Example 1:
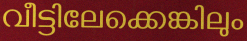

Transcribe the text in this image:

വീട്ടിലേക്കെങ്കിലും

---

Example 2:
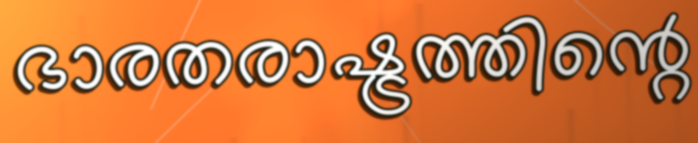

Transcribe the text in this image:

ഭാരതരാഷ്ട്രത്തിന്റെ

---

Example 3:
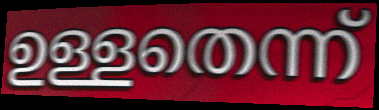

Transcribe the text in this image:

ഉള്ളതെന്ന്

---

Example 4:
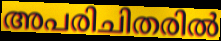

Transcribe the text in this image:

അപരിചിതരിൽ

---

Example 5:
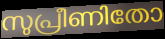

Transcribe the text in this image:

സുപ്രീണിതോ